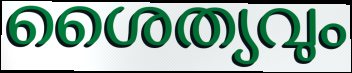
ശൈത്യവും